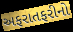
અફરાતફરીનો